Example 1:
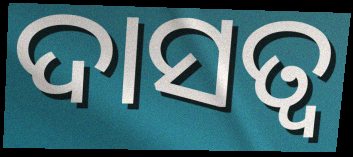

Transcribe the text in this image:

ଦାସତ୍ବ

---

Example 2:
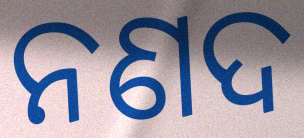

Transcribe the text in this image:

ନଣଦ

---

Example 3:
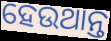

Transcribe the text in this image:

ହେଉଥାନ୍ତ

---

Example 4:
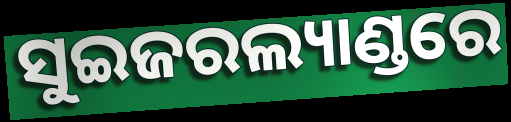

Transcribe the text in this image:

ସୁଇଜରଲ୍ୟାଣ୍ଡରେ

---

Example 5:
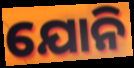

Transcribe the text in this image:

ଯୋନି